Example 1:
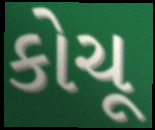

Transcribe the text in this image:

કોચૂ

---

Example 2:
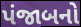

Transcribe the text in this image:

પંજાબનો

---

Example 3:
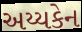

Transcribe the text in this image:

અય્યકેન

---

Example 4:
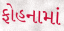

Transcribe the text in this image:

ફોહનામાં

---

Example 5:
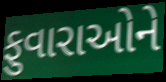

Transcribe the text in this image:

ફુવારાઓને